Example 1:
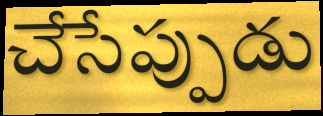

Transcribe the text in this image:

చేసేప్పుడు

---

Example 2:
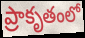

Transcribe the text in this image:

ప్రాకృతంలో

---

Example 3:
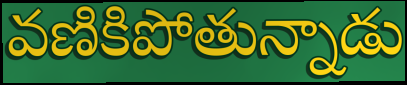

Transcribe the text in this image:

వణికిపోతున్నాడు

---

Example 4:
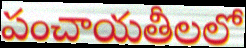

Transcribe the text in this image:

పంచాయతీలలో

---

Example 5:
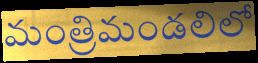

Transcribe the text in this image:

మంత్రిమండలిలో